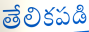
తేలికపడి